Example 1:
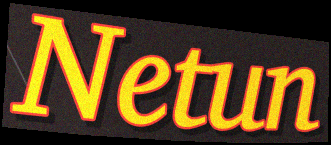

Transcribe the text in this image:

Netun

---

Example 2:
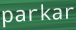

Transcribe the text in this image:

parkar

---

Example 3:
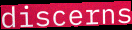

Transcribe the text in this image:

discerns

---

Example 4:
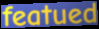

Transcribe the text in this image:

featued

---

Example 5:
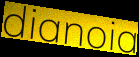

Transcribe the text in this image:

dianoia